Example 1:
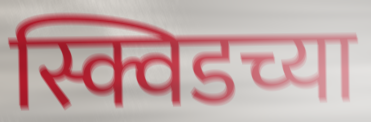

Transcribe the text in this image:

स्क्विडच्या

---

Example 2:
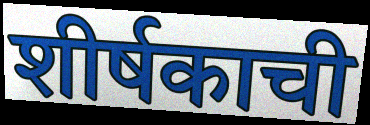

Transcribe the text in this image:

शीर्षकाची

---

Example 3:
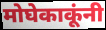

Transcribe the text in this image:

मोघेकाकूंनी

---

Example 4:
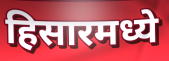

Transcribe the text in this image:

हिसारमध्ये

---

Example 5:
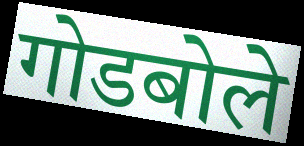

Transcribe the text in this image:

गोडबोले